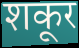
शकूर